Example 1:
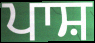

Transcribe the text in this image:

ਪਾਸ਼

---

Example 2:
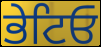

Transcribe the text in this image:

ਭੇਟਿਓ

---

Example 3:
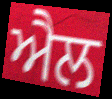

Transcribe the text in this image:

ਐਲ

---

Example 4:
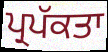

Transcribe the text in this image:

ਪ੍ਰਪੱਕਤਾ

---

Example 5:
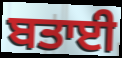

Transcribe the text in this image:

ਬਤਾਈ